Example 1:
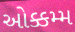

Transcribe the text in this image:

ઓક્કમ્મ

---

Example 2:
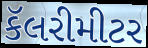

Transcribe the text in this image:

કૅલરીમીટર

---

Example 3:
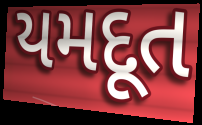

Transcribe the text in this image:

યમદૂત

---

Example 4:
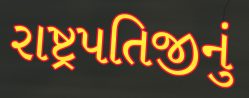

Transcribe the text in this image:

રાષ્ટ્રપતિજીનું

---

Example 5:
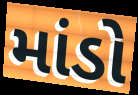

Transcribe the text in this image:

માંડો